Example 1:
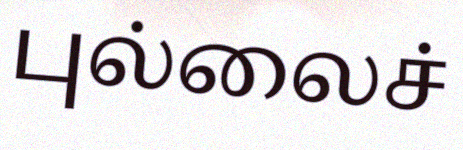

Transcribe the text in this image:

புல்லைச்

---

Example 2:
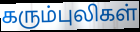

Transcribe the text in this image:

கரும்புலிகள்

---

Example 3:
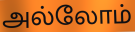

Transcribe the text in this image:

அல்லோம்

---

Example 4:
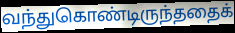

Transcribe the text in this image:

வந்துகொண்டிருந்ததைக்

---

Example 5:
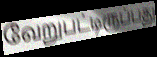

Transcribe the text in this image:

வேறுபட்டிருப்பது